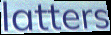
latters